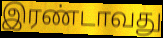
இரண்டாவது